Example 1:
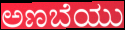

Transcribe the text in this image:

ಅಣಬೆಯು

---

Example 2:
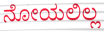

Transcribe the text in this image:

ನೋಯಲಿಲ್ಲ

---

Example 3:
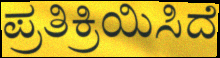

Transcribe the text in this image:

ಪ್ರತಿಕ್ರಿಯಿಸಿದೆ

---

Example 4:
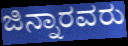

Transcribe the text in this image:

ಜಿನ್ನಾರವರು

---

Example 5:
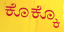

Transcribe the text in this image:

ಕೊಕ್ಕೊ